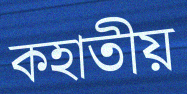
কহাতীয়